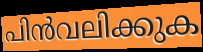
പിൻവലിക്കുക